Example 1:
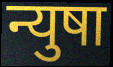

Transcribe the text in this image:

न्युषा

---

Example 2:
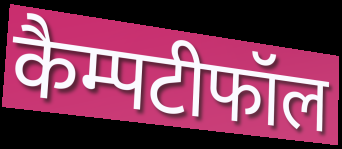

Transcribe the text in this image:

कैम्पटीफॉल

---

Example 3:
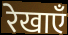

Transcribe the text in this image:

रेखाएँ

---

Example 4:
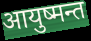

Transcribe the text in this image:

आयुष्मन्त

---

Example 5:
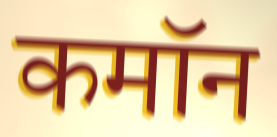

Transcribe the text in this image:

कमॉन